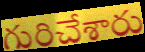
గురిచేశారు